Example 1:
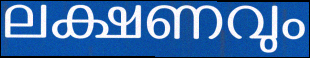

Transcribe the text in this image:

ലക്ഷണവും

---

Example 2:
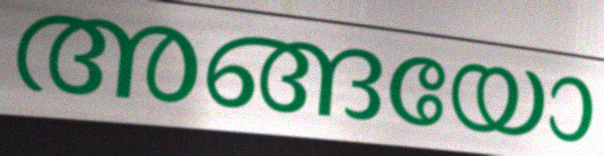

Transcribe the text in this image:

അങ്ങയോ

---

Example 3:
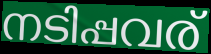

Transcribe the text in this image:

നടിപ്പവര്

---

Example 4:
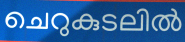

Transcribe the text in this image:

ചെറുകുടലിൽ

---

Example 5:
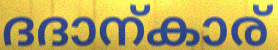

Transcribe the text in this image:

ദദാന്കാര്